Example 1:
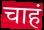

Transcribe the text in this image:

चाहं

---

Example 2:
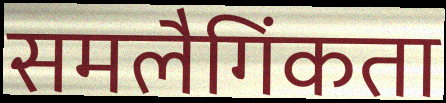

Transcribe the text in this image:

समलैगिंकता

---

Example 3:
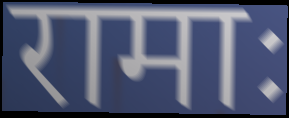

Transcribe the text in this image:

रामाः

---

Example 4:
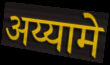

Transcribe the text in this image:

अय्यामे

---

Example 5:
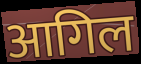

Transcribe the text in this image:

आगिल